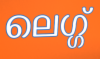
ലെഗ്ഗ്